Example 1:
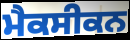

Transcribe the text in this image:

ਮੈਕਸੀਕਨ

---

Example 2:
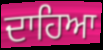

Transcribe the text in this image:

ਦਾਹਿਆ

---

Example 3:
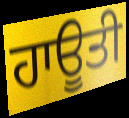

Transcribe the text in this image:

ਹਾਊਤੀ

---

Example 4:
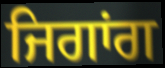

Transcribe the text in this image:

ਜਿਗਾਂਗ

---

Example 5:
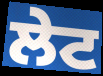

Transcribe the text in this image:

ਲੇਟ